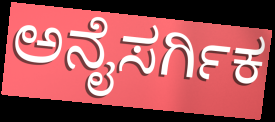
ಅನೈಸರ್ಗಿಕ